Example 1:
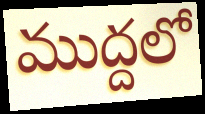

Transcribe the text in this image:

ముద్దలో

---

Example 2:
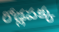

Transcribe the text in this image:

రోడ్లపక్క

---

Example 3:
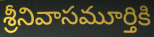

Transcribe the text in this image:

శ్రీనివాసమూర్తికి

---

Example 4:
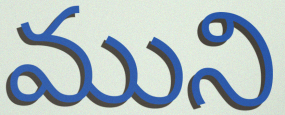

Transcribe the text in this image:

ముని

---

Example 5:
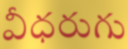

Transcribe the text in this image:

వీధరుగు